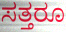
ಸತ್ತರೂ